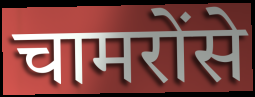
चामरोंसे